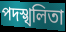
পদস্খলিতা